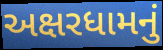
અક્ષરધામનું